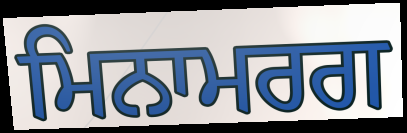
ਮਿਨਾਮਰਗ